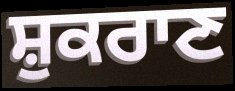
ਸ਼ੁਕਰਾਣ